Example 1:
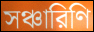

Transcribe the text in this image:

সঞ্চারিণি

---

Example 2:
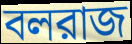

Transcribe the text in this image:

বলরাজ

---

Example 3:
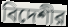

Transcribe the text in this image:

বিদেশীর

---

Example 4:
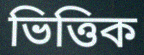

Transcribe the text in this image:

ভিত্তিক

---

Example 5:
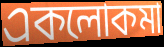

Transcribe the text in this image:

একলোকমা